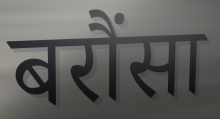
बरौंसा